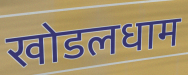
खोडलधाम